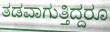
ತಡವಾಗುತ್ತಿದ್ದರೂ